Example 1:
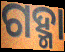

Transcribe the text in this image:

ଗହ୍ମା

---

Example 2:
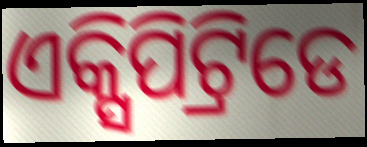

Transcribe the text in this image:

ଏକ୍ସିପିଟ୍ରିଡେ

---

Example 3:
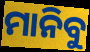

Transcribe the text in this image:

ମାନିବୁ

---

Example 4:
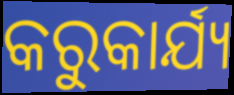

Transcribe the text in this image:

କରୁକାର୍ଯ୍ୟ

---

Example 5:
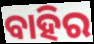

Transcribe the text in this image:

ବାହିର